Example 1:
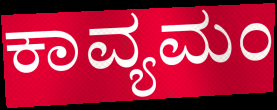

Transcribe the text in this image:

ಕಾವ್ಯಮಂ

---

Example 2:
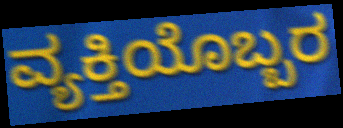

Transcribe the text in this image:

ವ್ಯಕ್ತಿಯೊಬ್ಬರ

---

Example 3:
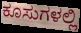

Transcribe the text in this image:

ಕೂಸುಗಳಲ್ಲಿ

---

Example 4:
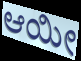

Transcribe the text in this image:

ಆಯೀ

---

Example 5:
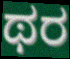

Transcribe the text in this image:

ಥರ